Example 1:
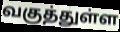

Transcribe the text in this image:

வகுத்துள்ள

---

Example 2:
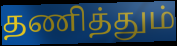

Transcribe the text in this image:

தணித்தும்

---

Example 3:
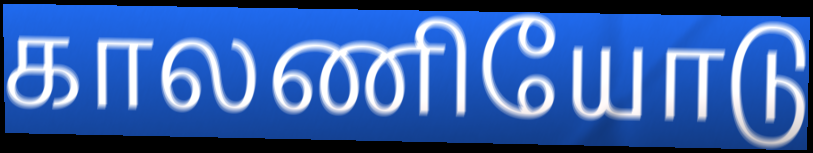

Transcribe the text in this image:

காலணியோடு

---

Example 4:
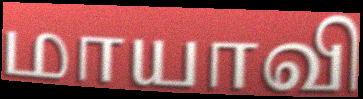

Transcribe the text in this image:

மாயாவி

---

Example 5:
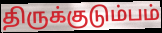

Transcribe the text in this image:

திருக்குடும்பம்